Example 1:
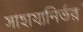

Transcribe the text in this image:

সাহায্যনির্ভর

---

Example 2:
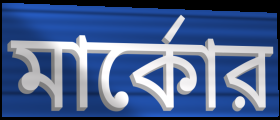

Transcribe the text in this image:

মার্কোর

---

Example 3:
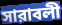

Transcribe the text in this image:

সারাবলী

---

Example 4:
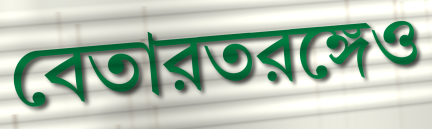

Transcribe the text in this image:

বেতারতরঙ্গেও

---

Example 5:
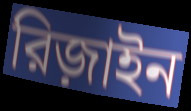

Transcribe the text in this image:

রিজ়াইন